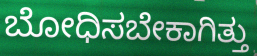
ಬೋಧಿಸಬೇಕಾಗಿತ್ತು